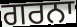
ਗਰਨਾ